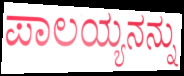
ಪಾಲಯ್ಯನನ್ನು